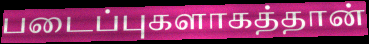
படைப்புகளாகத்தான்